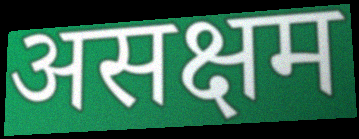
असक्षम